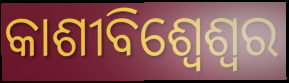
କାଶୀବିଶ୍ୱେଶ୍ୱର